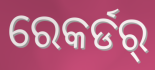
ରେକର୍ଡର୍